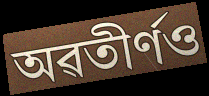
অৱতীৰ্ণও